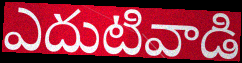
ఎదుటివాడి